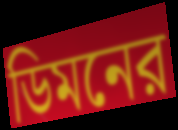
ডিমনের